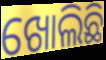
ଖୋଲିଛି